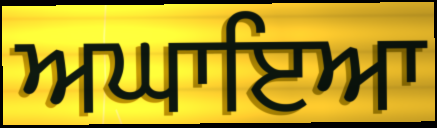
ਅਘਾਇਆ